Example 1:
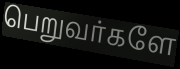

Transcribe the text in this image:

பெறுவர்களே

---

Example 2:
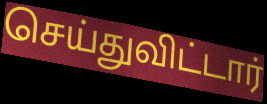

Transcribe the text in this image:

செய்துவிட்டார்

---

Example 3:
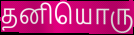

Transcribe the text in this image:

தனியொரு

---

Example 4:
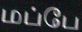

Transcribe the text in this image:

மப்பே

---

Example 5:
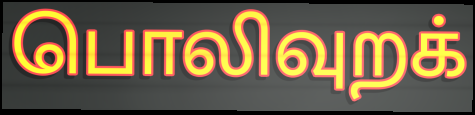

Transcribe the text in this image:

பொலிவுறக்